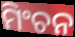
ମିଂଚନ